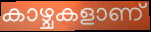
കാഴ്ചകളാണ്